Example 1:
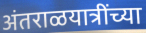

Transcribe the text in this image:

अंतराळयात्रींच्या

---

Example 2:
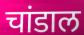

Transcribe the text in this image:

चांडाल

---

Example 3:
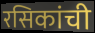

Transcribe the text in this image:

रसिकांची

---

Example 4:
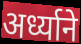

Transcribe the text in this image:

अर्ध्याने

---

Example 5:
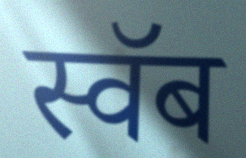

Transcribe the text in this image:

स्वॅब